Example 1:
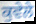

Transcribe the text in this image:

ਕੁਵੇਲੇ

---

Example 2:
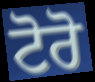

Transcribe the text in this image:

ਟੋਰੋ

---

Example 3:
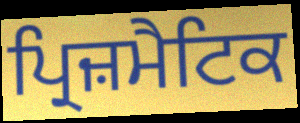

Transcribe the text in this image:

ਪ੍ਰਿਜ਼ਮੈਟਿਕ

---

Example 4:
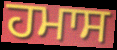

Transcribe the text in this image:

ਹਮਾਸ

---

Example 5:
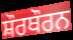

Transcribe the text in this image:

ਸ਼ੌਰਥੌਰਨ